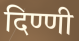
दिण्णी